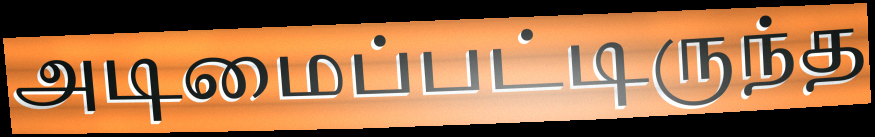
அடிமைப்பட்டிருந்த